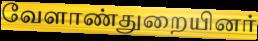
வேளாண்துறையினர்